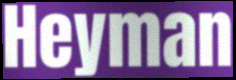
Heyman